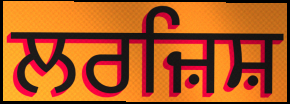
ਲਰਜ਼ਿਸ਼